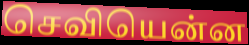
செவியென்ன